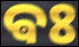
ଵଃ